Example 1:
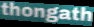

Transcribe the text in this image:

thongath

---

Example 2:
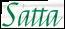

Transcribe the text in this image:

Satta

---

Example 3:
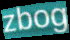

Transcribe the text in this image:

zbog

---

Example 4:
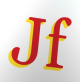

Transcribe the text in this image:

Jf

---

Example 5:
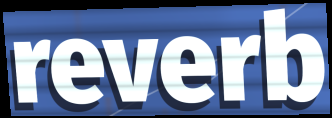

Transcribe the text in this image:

reverb